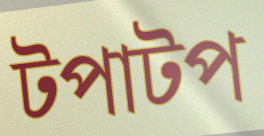
টপাটপ